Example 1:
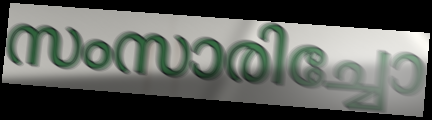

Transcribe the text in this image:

സംസാരിച്ചോ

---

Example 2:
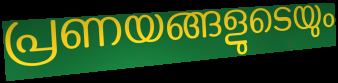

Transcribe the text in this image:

പ്രണയങ്ങളുടെയും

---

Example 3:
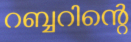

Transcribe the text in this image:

റബ്ബറിന്റെ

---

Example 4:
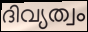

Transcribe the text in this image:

ദിവ്യത്വം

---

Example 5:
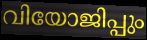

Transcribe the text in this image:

വിയോജിപ്പും